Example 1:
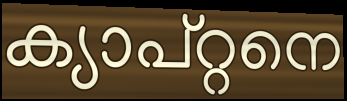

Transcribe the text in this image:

ക്യാപ്റ്റനെ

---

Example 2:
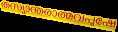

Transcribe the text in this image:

തസ്യാന്തരാത്മവപുഷേ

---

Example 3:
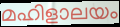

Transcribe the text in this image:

മഹിളാലയം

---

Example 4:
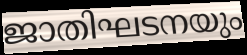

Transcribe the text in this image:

ജാതിഘടനയും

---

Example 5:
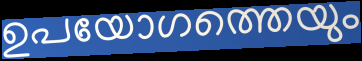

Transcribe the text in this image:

ഉപയോഗത്തെയും